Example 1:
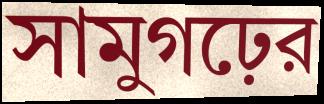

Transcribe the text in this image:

সামুগঢ়ের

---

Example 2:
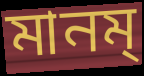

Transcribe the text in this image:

মানম্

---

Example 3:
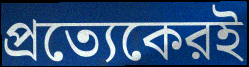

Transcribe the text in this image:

প্রত্যেকেরই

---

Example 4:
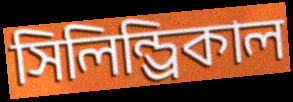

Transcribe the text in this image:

সিলিন্ড্রিকাল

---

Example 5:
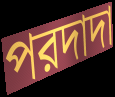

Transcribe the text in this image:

পরদাদা